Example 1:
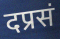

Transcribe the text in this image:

दप्रसं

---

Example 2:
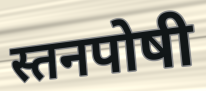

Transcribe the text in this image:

स्तनपोषी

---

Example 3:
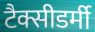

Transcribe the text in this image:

टैक्सीडर्मी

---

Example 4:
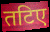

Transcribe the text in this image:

तटिए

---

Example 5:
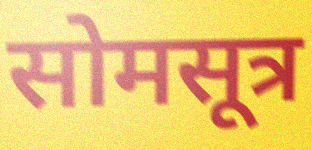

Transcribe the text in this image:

सोमसूत्र